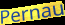
Pernau